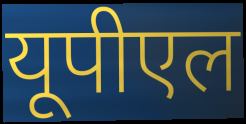
यूपीएल